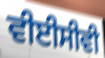
ਵੀਈਸੀਵੀ